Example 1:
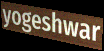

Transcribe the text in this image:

yogeshwar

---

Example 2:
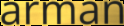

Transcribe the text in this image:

arman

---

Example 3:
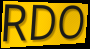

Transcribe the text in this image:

RDO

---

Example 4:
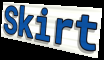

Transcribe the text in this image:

Skirt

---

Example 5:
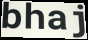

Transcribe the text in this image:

bhaj